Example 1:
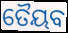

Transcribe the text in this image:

ତୈୟବ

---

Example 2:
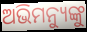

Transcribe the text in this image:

ଅଭିମନ୍ୟୁଙ୍କୁ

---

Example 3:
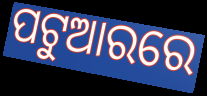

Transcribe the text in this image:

ପଟୁଆରରେ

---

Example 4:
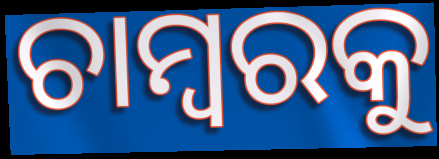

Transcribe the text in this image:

ଚାମ୍ବରକୁ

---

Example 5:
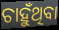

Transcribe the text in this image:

ଚାହୁଁଥିବା